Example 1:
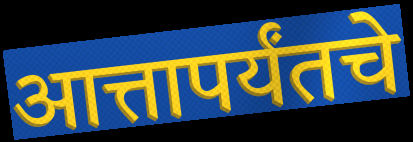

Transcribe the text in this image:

आत्तापर्यंतचे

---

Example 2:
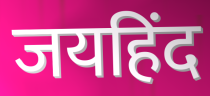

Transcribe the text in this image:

जयहिंद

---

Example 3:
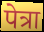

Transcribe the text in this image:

पेत्रा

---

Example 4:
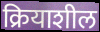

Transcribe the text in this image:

क्रियाशील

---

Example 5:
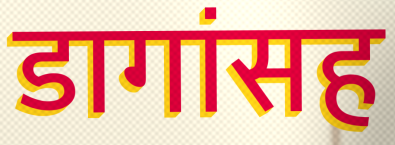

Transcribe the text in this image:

डागांसह